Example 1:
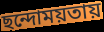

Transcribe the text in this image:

ছন্দোময়তায়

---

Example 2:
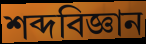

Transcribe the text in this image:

শব্দবিজ্ঞান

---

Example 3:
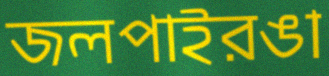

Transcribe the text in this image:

জলপাইরঙা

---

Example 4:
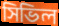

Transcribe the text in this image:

সিভিল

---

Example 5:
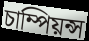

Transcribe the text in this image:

চাম্পিয়ন্স